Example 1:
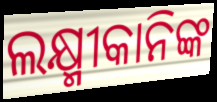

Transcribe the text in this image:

ଲକ୍ଷ୍ମୀକାନିଙ୍କ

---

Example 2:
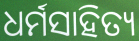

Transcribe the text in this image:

ଧର୍ମସାହିତ୍ୟ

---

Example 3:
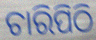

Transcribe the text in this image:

ଚାରିପିଠି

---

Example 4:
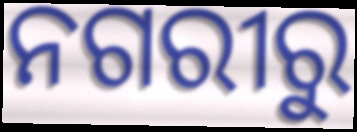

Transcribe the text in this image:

ନଗରୀରୁ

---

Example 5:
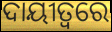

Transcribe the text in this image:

ଦାୟୀତ୍ଵରେ